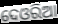
ଦେଓରିଆ